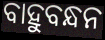
ବାହୁବନ୍ଧନ